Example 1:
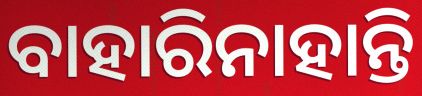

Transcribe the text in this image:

ବାହାରିନାହାନ୍ତି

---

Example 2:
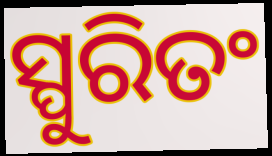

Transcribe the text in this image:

ସ୍ପୁରିତଂ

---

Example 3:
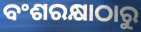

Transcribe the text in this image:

ବଂଶରକ୍ଷାଠାରୁ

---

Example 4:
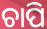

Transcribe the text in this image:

ଚାପି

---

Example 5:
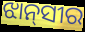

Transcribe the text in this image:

ଝାନ୍‌ସୀର